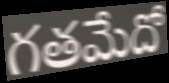
గతమేదో